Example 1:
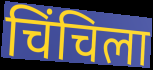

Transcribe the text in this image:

चिंचिला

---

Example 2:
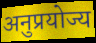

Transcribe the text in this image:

अनुप्रयोज्य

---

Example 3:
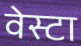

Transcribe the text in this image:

वेस्टा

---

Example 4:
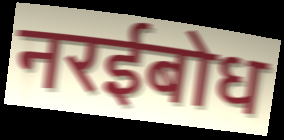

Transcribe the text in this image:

नरईबोध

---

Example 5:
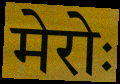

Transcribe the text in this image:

मेरोः